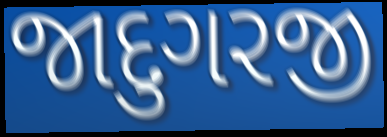
જાદુગરજી